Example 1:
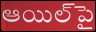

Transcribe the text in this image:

ఆయిల్‌పై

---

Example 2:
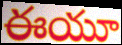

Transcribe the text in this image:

ఈయూ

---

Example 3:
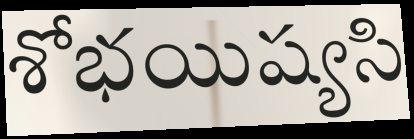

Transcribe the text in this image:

శోభయిష్యసి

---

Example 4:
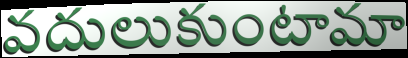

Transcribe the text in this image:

వదులుకుంటామా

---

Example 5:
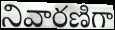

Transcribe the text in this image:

నివారణిగా